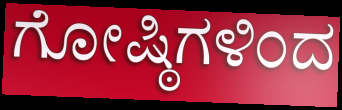
ಗೋಷ್ಠಿಗಳಿಂದ